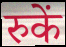
रुकें